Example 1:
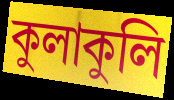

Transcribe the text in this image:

কুলাকুলি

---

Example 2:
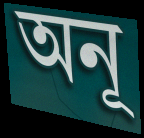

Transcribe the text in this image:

অনূ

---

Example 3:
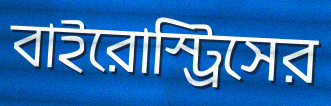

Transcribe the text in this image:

বাইরোস্ট্রিসের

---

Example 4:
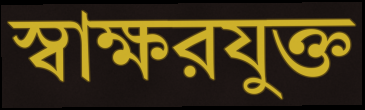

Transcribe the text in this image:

স্বাক্ষরযুক্ত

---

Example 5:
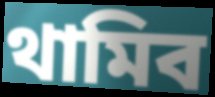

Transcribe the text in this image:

থামিব